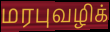
மரபுவழிக்